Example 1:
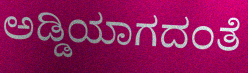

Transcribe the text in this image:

ಅಡ್ಡಿಯಾಗದಂತೆ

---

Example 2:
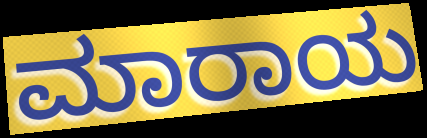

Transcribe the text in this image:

ಮಾರಾಯ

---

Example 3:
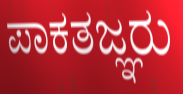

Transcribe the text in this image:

ಪಾಕತಜ್ಞರು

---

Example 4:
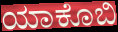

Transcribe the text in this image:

ಯಾಕೊಬಿ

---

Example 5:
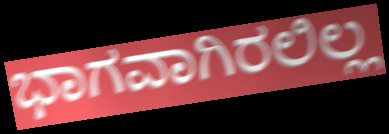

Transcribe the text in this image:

ಭಾಗವಾಗಿರಲಿಲ್ಲ